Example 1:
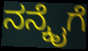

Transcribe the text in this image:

ನನ್ಕೈಗೆ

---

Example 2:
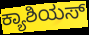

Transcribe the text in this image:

ಕ್ಯಾಶಿಯಸ್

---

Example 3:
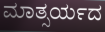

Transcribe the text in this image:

ಮಾತ್ಸರ್ಯದ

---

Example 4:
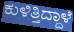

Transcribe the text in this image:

ಕುಳಿತ್ತಿದ್ದಾಳೆ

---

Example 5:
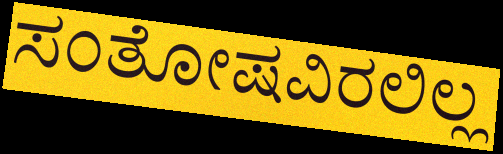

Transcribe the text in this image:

ಸಂತೋಷವಿರಲಿಲ್ಲ